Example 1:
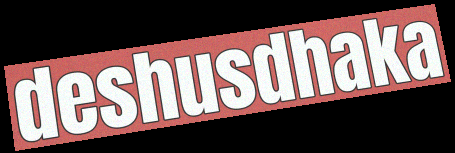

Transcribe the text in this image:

deshusdhaka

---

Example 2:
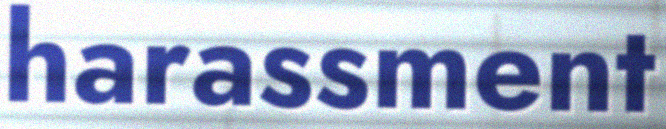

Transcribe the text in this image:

harassment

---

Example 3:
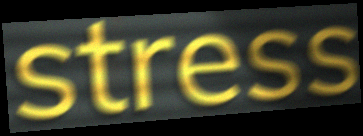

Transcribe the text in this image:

stress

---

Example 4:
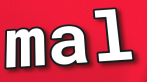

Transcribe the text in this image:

mal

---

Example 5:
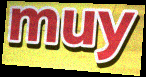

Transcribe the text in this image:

muy